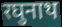
रघुनाथ